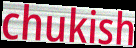
chukish